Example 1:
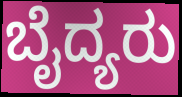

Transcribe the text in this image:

ಬೈದ್ಯರು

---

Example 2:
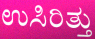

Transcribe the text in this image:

ಉಸಿರಿತ್ತು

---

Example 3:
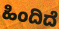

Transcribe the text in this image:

ಹಿಂದಿದೆ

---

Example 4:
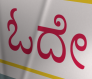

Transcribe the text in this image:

ಓದೇ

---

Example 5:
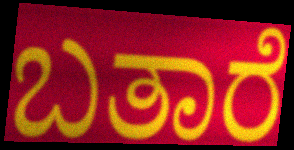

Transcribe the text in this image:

ಬತಾರೆ